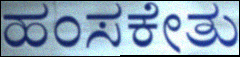
ಹಂಸಕೇತು